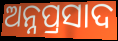
ଅନ୍ନପ୍ରସାଦ